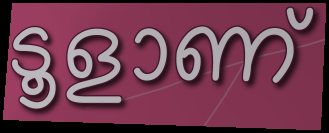
ടൂളാണ്